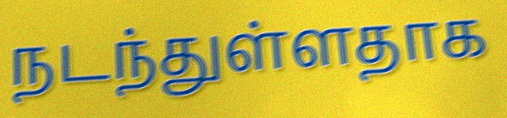
நடந்துள்ளதாக